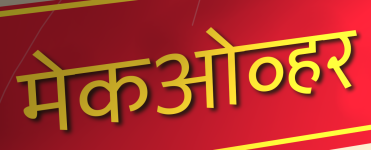
मेकओव्हर